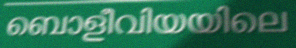
ബൊളീവിയയിലെ